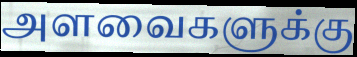
அளவைகளுக்கு